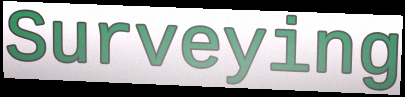
Surveying